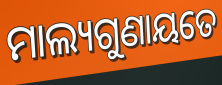
ମାଲ୍ୟଗୁଣାୟତେ